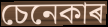
চেনেকাৰ